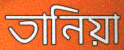
তানিয়া